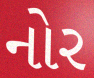
નોર